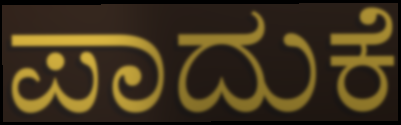
ಪಾದುಕೆ